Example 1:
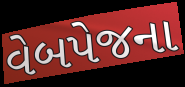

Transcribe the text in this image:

વેબપેજના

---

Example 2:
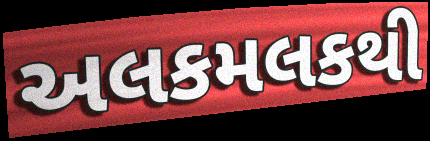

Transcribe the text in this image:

અલકમલકથી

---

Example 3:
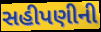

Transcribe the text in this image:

સહીપણીની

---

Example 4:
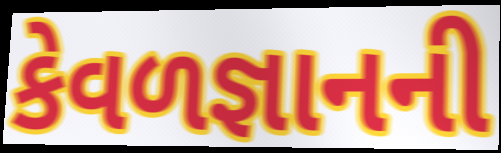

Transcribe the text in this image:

કેવળજ્ઞાનની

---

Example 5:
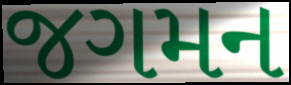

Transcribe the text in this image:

જગમન